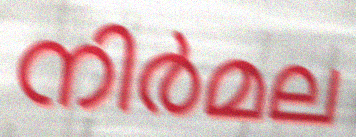
നിർമല